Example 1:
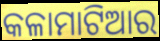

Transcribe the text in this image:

କଳାମାଟିଆର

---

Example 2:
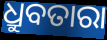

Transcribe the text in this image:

ଧ୍ରୁବତାରା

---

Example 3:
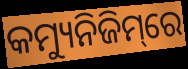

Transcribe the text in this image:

କମ୍ୟୁନିଜିମ୍‌ରେ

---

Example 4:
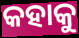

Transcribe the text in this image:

କହାକୁ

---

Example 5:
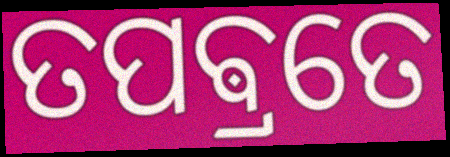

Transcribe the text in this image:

ତପଵ୍ରତେ